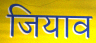
जियाव